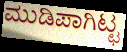
ಮುಡಿಪಾಗಿಟ್ಟ